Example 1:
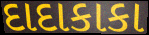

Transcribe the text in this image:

દાદાકાકા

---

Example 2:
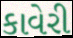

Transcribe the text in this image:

કાવેરી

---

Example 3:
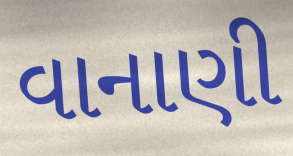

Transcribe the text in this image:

વાનાણી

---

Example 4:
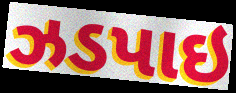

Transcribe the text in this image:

ઝડપાઇ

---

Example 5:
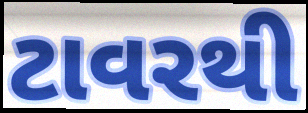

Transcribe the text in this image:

ટાવરથી